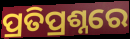
ପ୍ରତିପ୍ରଶ୍ନରେ